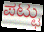
ಪಟ್ಟು